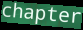
chapter